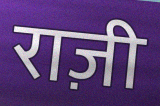
राज़ी